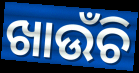
ଖାଉଁଚି